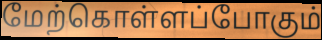
மேற்கொள்ளப்போகும்